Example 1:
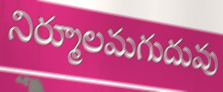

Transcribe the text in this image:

నిర్మూలమగుదువు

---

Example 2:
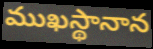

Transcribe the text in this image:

ముఖస్థానాన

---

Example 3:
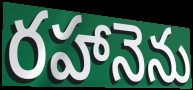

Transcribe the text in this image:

రహానెను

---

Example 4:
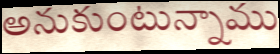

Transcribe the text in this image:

అనుకుంటున్నాము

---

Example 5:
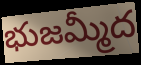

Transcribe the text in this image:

భుజమ్మీద